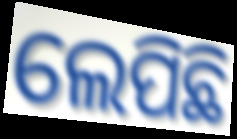
ଲେପିଛି